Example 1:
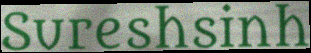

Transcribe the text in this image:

Sureshsinh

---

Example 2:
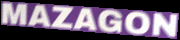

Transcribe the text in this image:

MAZAGON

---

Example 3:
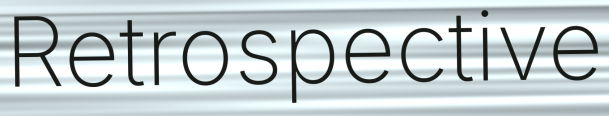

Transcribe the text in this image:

Retrospective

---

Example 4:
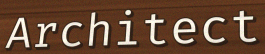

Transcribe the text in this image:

Architect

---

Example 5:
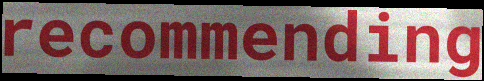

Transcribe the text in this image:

recommending